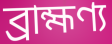
ব্ৰাহ্মণ্য